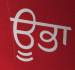
ਊਭਾ